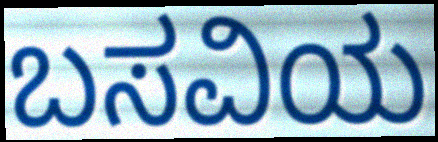
ಬಸವಿಯ